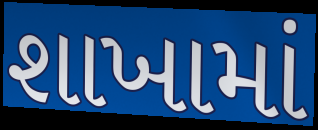
શાખામાં